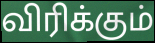
விரிக்கும்